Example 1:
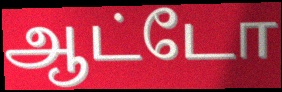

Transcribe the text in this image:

ஆட்டோ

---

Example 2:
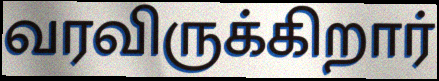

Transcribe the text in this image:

வரவிருக்கிறார்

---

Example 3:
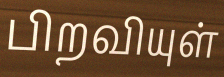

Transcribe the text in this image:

பிறவியுள்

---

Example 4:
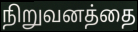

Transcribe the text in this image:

நிறுவனத்தை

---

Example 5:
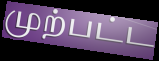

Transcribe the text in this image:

முற்பட்ட